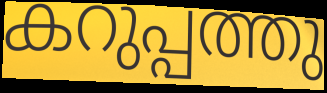
കറുപ്പത്തു